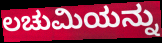
ಲಚುಮಿಯನ್ನು